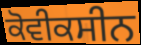
ਕੋਵੀਕਸੀਨ